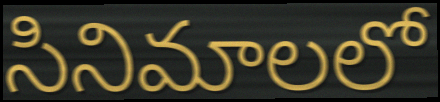
సినిమాలలో